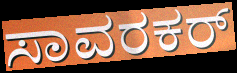
ಸಾವರಕರ್